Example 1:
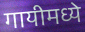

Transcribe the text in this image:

गायीमध्ये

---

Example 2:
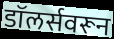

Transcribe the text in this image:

डॉलर्सवरून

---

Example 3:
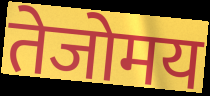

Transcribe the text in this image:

तेजोमय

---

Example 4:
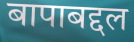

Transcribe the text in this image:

बापाबद्दल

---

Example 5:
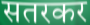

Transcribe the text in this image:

सतरकर